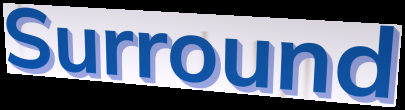
Surround